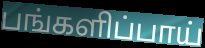
பங்களிப்பாய்